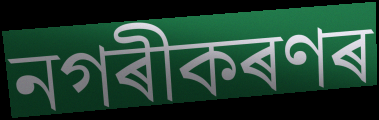
নগৰীকৰণৰ